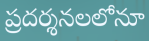
ప్రదర్శనలలోనూ